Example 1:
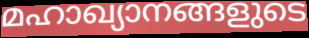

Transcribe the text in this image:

മഹാഖ്യാനങ്ങളുടെ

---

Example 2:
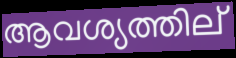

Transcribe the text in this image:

ആവശ്യത്തില്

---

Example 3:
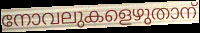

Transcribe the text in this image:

നോവലുകളെഴുതാന്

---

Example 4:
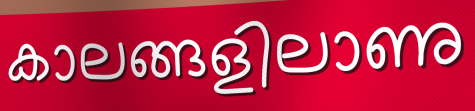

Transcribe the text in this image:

കാലങ്ങളിലാണു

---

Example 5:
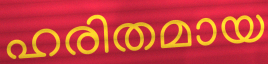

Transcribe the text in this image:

ഹരിതമായ